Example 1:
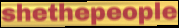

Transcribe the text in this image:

shethepeople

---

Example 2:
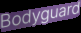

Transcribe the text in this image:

Bodyguard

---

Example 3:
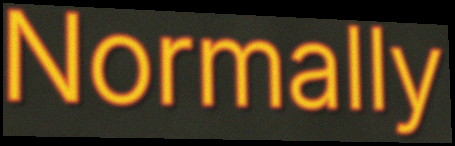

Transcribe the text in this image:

Normally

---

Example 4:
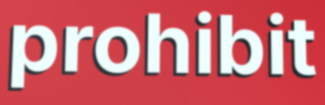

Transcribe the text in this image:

prohibit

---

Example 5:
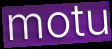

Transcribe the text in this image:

motu